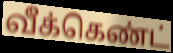
வீக்கெண்ட்